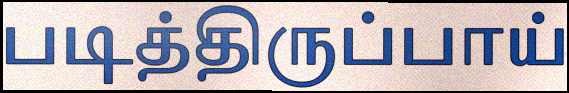
படித்திருப்பாய்